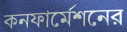
কনফার্মেশনের